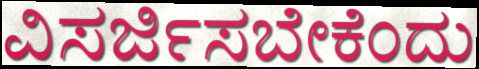
ವಿಸರ್ಜಿಸಬೇಕೆಂದು